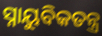
ସ୍ନାୟୁବିକତନ୍ତ୍ର